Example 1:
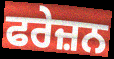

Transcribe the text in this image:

ਫਰੇਜ਼ਨ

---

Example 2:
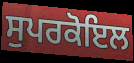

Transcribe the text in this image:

ਸੁਪਰਕੋਇਲ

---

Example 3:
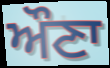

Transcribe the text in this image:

ਔਣਾ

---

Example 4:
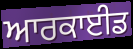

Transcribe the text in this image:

ਆਰਕਾਈਡ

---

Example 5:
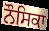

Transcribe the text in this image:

ਨੌਸਿਕਾ